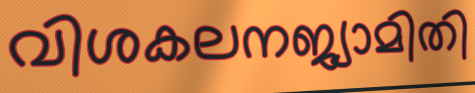
വിശകലനജ്യാമിതി